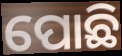
ପୋଛି